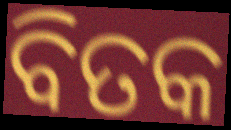
ବିତକ